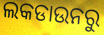
ଲକଡାଉନରୁ